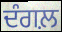
ਦੰਗਲ਼